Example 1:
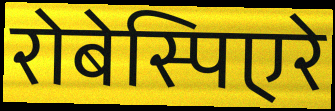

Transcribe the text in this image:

रोबेस्पिएरे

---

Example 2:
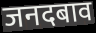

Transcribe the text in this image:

जनदबाव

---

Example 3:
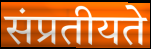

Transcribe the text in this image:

संप्रतीयते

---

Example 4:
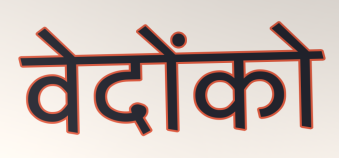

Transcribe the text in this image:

वेदोंको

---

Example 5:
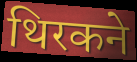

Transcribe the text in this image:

थिरकने